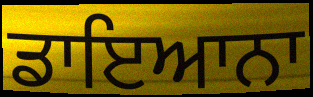
ਡਾਇਆਨਾ